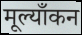
मूल्याँकन